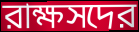
রাক্ষসদের